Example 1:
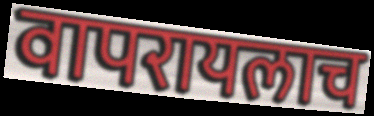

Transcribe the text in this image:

वापरायलाच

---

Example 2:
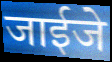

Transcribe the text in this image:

जाईजे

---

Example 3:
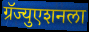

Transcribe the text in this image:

ग्रॅज्युएशनला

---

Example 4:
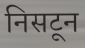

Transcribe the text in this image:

निसटून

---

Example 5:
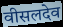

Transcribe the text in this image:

वीसलदेव